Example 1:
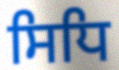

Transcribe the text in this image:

ਸਿਧਿ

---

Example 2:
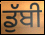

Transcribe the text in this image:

ਡੁੱਬੀ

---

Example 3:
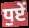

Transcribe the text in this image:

ਧੁਏਂ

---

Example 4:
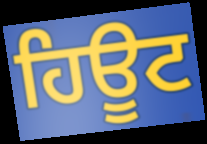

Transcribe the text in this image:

ਹਿਊਟ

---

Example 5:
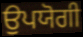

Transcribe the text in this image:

ਉਪਯੋਗੀ